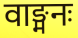
वाङ्मनः